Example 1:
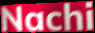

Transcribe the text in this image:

Nachi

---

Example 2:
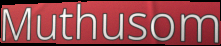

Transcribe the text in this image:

Muthusom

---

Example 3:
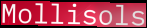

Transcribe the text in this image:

Mollisols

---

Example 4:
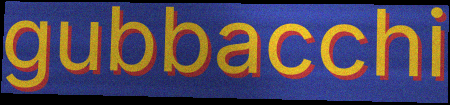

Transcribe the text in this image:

gubbacchi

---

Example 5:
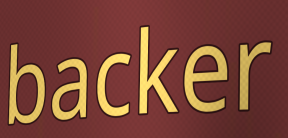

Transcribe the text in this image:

backer